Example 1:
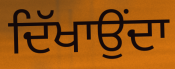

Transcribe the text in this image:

ਦਿੱਖਾਉਂਦਾ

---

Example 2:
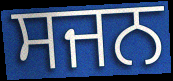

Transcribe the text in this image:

ਸਜਨ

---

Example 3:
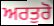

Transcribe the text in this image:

ਅਰਤੁਰੋ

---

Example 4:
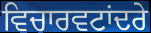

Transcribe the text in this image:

ਵਿਚਾਰਵਟਾਂਦਰੇ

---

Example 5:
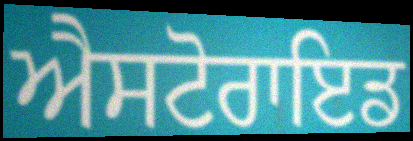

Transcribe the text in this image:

ਐਸਟੋਰਾਇਡ